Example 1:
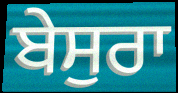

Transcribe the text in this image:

ਬੇਸੁਰਾ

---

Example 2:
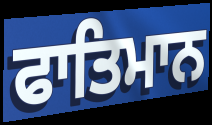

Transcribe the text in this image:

ਫਾਤਿਮਾਨ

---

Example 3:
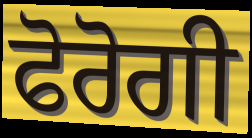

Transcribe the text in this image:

ਫੋਰੋਗੀ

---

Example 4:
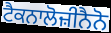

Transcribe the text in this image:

ਟੈਕਨਾਲੋਜ਼ੀਨੈਨੋ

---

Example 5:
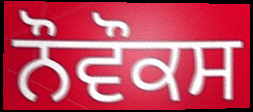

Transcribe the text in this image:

ਨੌਵੌਕਸ